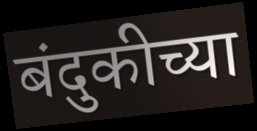
बंदुकीच्या